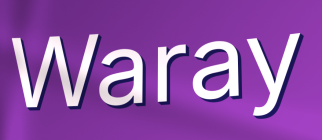
Waray